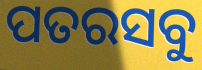
ପତରସବୁ